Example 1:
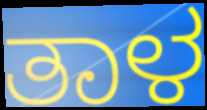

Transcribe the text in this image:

ತಾಳ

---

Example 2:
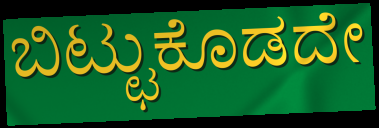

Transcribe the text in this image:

ಬಿಟ್ಟುಕೊಡದೇ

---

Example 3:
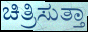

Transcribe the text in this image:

ಚಿತ್ರಿಸುತ್ತಾ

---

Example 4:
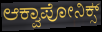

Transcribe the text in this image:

ಆಕ್ವಾಪೋನಿಕ್ಸ್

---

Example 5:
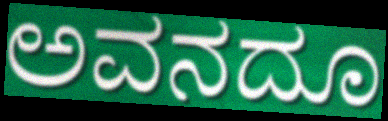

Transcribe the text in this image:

ಅವನದೂ